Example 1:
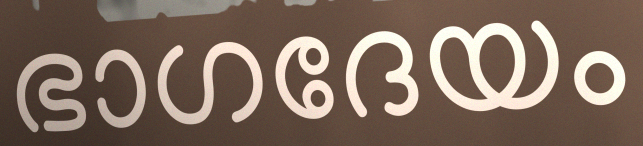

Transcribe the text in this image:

ഭാഗദേയം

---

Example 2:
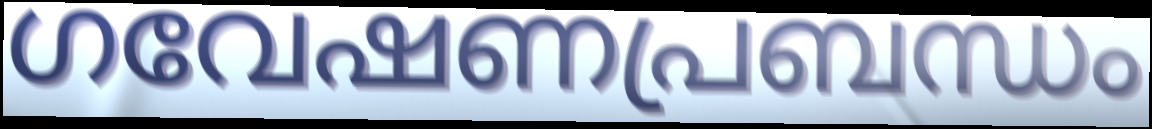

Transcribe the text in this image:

ഗവേഷണപ്രബന്ധം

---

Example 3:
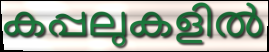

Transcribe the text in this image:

കപ്പലുകളിൽ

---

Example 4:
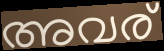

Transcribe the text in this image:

അവര്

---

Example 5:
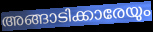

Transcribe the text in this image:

അങ്ങാടിക്കാരേയും